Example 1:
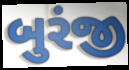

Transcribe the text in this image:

બુરંજી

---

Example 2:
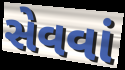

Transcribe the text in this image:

સેવવાં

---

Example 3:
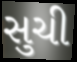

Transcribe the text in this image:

સુચી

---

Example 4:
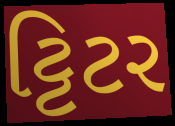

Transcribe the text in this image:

ટ્ટિટર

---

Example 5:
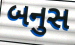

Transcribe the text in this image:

બનુસ